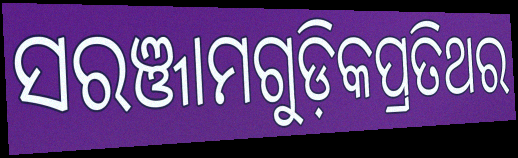
ସରଞ୍ଜାମଗୁଡ଼ିକପ୍ରତିଥର